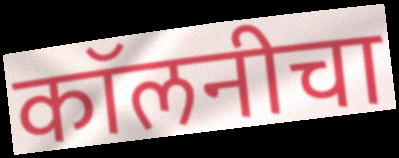
कॉलनीचा